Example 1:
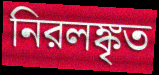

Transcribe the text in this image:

নিরলঙ্কৃত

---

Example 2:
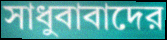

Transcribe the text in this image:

সাধুবাবাদের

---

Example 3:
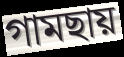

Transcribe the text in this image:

গামছায়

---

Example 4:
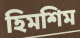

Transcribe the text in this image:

হিমশিম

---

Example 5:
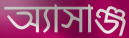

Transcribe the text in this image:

অ্যাসাঞ্জ